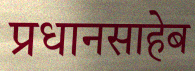
प्रधानसाहेब